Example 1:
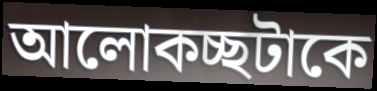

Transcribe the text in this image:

আলোকচ্ছটাকে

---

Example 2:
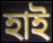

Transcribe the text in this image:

হাই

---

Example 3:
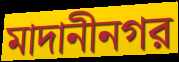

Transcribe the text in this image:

মাদানীনগর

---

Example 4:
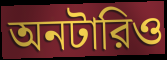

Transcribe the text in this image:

অনটারিও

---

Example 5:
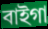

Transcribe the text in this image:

বাইগা